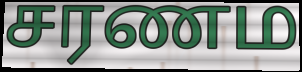
சரணம